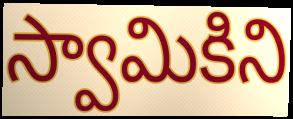
స్వామికిని